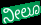
ನೀಲೂ